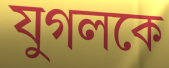
যুগলকে